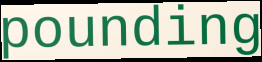
pounding